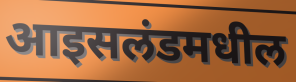
आइसलंडमधील